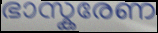
ഭാസ്കരേണ